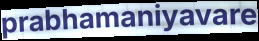
prabhamaniyavare